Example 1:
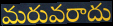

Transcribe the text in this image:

మరువరాదు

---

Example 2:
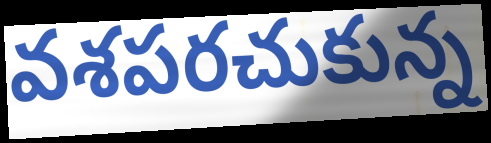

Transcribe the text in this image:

వశపరచుకున్న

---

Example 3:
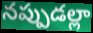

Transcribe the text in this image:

నప్పుడల్లా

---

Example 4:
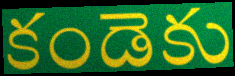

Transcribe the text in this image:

కండెకు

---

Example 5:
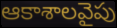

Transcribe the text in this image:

ఆకాశాలవైపు